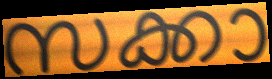
സക്കാ